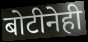
बोटीनेही